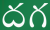
దగ